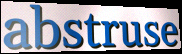
abstruse